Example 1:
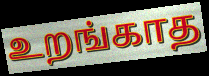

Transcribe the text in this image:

உறங்காத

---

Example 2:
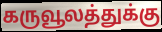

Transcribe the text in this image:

கருவூலத்துக்கு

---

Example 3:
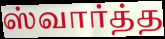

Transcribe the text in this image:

ஸ்வார்த்த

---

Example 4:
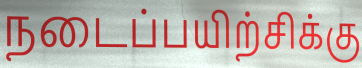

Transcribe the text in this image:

நடைப்பயிற்சிக்கு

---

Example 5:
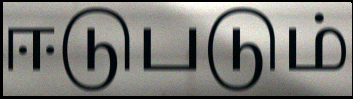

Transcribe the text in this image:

ஈடுபடும்